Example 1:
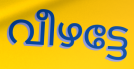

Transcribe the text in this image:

വീഴട്ടേ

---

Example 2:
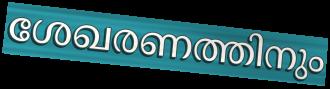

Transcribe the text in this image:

ശേഖരണത്തിനും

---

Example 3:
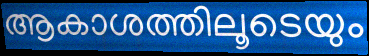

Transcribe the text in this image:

ആകാശത്തിലൂടെയും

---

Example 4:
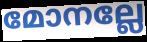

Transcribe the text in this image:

മോനല്ലേ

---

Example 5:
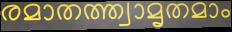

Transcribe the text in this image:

രമാതത്ത്വാമൃതമാം